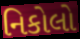
નિકોલો